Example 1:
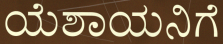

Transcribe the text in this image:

ಯೆಶಾಯನಿಗೆ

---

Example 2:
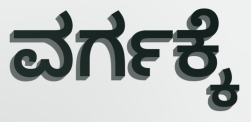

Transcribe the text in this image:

ವರ್ಗಕ್ಕೆ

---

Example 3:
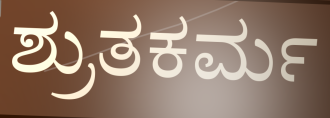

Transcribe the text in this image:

ಶ್ರುತಕರ್ಮ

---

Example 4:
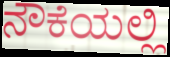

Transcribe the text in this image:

ನೌಕೆಯಲ್ಲಿ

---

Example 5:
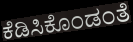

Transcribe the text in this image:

ಕೆಡಿಸಿಕೊಂಡಂತೆ